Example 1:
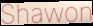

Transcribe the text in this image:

Shawon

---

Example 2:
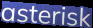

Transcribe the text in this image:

asterisk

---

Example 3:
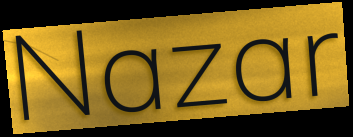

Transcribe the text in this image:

Nazar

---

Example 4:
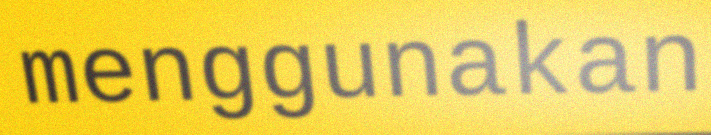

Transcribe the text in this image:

menggunakan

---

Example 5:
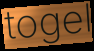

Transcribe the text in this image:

togel